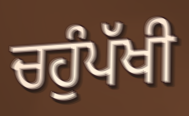
ਚਹੁੰਪੱਖੀ